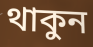
থাকুন